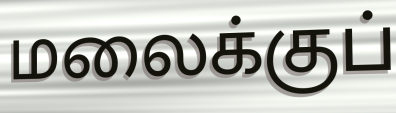
மலைக்குப்